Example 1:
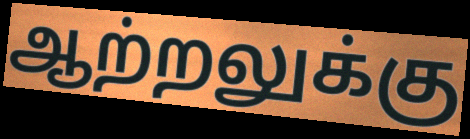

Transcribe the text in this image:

ஆற்றலுக்கு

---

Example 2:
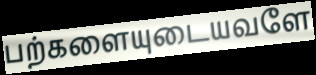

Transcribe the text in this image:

பற்களையுடையவளே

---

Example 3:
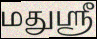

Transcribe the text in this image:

மதுஸ்ரீ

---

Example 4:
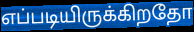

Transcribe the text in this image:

எப்படியிருக்கிறதோ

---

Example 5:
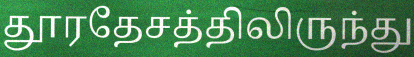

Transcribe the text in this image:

தூரதேசத்திலிருந்து